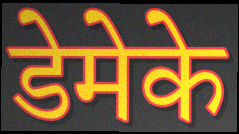
डेमेके